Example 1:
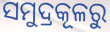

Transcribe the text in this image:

ସମୁଦ୍ରକୂଳରୁ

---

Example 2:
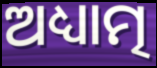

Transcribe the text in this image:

ଅଧ୍ୟାତ୍ମ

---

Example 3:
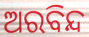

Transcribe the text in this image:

ଅରବିନ୍ଦ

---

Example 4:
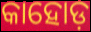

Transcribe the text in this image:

କାହୋଡ଼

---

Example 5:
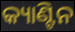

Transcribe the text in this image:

କ୍ୟାଣ୍ଟିନ